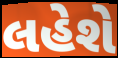
લહેશે